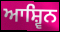
ਆਸ਼੍ਵਿਨ